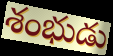
శంభుడు